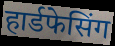
हार्डफेसिंग